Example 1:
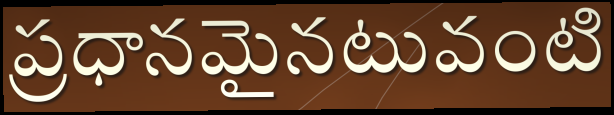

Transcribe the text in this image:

ప్రధానమైనటువంటి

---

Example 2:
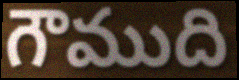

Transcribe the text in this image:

గౌముది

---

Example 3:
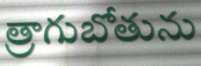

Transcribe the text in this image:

త్రాగుబోతును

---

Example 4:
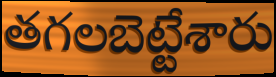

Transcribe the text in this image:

తగలబెట్టేశారు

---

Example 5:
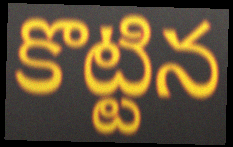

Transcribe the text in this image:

కొట్టిన